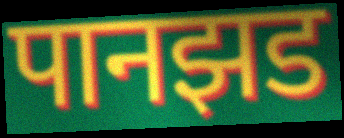
पानझड